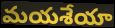
మయశేయా